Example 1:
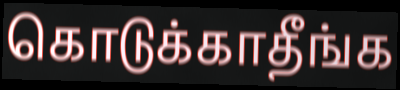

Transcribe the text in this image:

கொடுக்காதீங்க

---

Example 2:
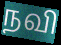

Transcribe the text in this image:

நவி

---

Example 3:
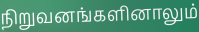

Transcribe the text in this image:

நிறுவனங்களினாலும்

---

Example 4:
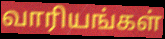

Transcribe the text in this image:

வாரியங்கள்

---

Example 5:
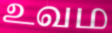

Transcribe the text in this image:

உவம